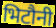
भिटौनी